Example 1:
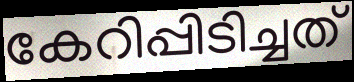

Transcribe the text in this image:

കേറിപ്പിടിച്ചത്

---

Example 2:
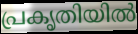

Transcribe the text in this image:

പ്രകൃതിയിൽ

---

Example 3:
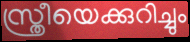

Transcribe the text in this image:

സ്ത്രീയെക്കുറിച്ചും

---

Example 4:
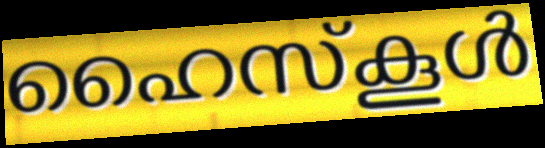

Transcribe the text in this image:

ഹൈസ്‌കൂൾ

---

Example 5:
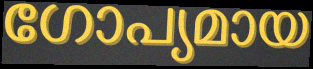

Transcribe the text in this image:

ഗോപ്യമായ